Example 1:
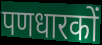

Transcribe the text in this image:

पणधारकों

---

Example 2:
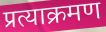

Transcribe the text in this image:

प्रत्याक्रमण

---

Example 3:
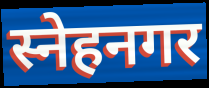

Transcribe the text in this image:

स्नेहनगर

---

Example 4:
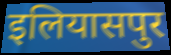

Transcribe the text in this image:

इलियासपुर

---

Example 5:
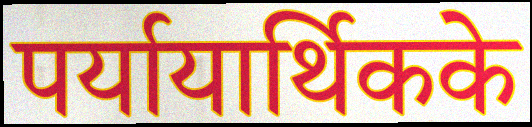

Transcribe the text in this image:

पर्यायार्थिकके